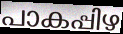
പാകപ്പിഴ